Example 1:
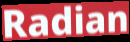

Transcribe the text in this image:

Radian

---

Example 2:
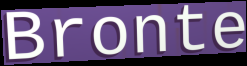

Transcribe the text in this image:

Bronte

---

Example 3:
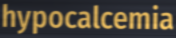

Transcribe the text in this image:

hypocalcemia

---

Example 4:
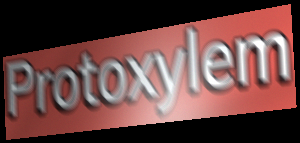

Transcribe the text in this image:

Protoxylem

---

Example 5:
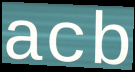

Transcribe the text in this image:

acb